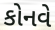
કોનવે